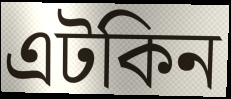
এটকিন